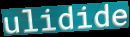
ulidide